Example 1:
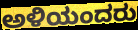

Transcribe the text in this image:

ಅಳಿಯಂದರು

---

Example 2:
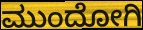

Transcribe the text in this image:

ಮುಂದೋಗಿ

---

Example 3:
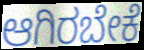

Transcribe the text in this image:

ಆಗಿರಬೇಕೆ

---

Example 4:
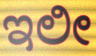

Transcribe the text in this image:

ಇಲೀ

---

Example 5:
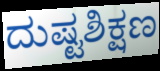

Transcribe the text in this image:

ದುಷ್ಟಶಿಕ್ಷಣ